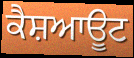
ਕੈਸ਼ਆਊਟ